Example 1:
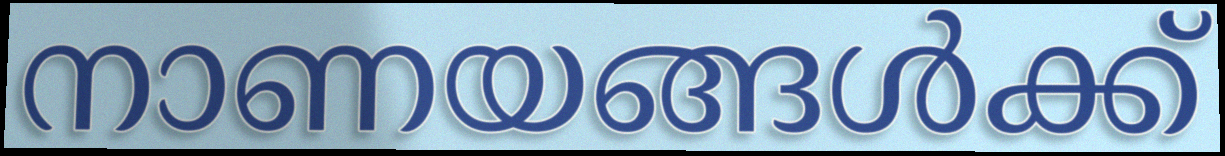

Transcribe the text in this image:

നാണയങ്ങൾക്ക്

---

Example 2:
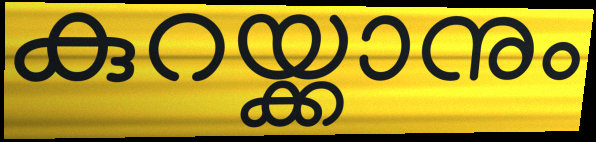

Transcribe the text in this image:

കുറയ്ക്കാനും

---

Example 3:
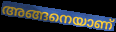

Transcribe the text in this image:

അങ്ങനെയാണ്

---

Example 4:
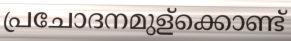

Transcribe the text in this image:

പ്രചോദനമുള്ക്കൊണ്ട്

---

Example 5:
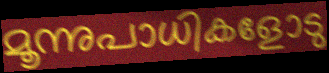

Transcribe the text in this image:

മൂന്നുപാധികളോടു